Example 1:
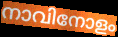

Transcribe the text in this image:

നാവിനോളം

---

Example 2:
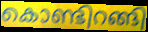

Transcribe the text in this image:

കൊണ്ടിറങ്ങി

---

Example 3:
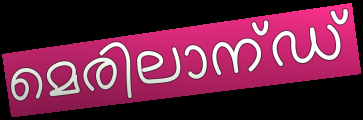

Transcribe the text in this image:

മെരിലാന്ഡ്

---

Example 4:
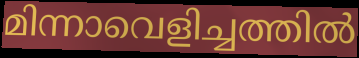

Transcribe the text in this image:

മിന്നാവെളിച്ചത്തിൽ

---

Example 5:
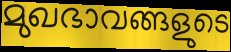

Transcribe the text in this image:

മുഖഭാവങ്ങളുടെ